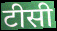
टीसी